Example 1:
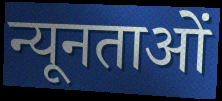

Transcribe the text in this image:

न्यूनताओं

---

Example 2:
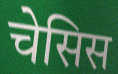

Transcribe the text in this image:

चेसिस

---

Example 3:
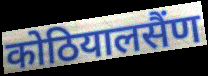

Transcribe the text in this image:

कोठियालसैंण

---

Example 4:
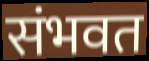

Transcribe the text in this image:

संभवत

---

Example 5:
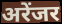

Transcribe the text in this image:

अरेंजर